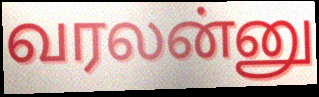
வரலன்னு